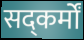
सद्कर्मों